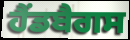
ਹੈਂਡਬੈਗਸ